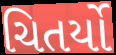
ચિતર્યો